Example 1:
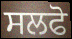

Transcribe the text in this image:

ਸਲਫੋ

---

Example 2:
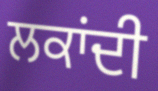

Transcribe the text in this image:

ਲਕਾਂਦੀ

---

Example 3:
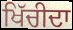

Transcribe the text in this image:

ਖਿੱਚੀਦਾ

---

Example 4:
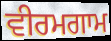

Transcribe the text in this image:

ਵੀਰਮਗਾਮ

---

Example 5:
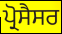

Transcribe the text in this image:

ਪ੍ਰੋਸੈਸਰ